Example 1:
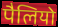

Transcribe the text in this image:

पैलियो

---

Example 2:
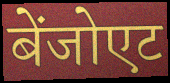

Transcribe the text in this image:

बेंजोएट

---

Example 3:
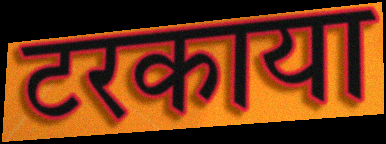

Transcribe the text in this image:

टरकाया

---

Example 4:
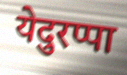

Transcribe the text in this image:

येदुरप्पा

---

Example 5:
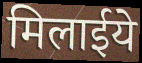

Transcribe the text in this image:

मिलाईये